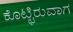
ಕೊಟ್ಟಿರುವಾಗ